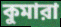
কুমারা